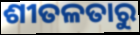
ଶୀତଳତାରୁ